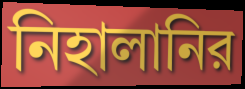
নিহালানির